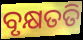
ବୃକ୍ଷତତି